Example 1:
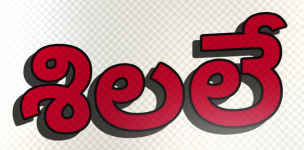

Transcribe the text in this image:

శిలలే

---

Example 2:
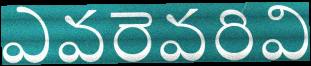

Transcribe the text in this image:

ఎవరెవరివి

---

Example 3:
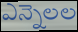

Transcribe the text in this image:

ఎన్నెలల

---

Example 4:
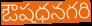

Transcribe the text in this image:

ఔషధనగరి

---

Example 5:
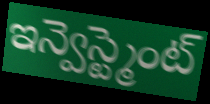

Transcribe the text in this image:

ఇన్వెస్ట్మెంట్